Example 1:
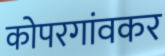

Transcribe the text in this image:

कोपरगांवकर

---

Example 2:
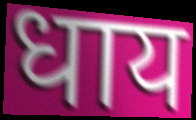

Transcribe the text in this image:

धाय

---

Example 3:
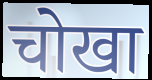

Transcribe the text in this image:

चोखा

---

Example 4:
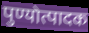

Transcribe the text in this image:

पुण्योत्पादक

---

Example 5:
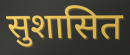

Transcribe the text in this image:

सुशासित